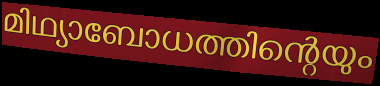
മിഥ്യാബോധത്തിന്റെയും